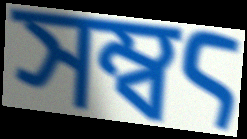
সম্বৎ